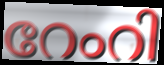
റേംറി